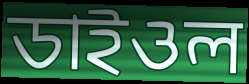
ডাইওল